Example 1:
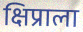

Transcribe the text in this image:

क्षिप्राला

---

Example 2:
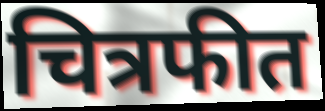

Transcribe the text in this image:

चित्रफीत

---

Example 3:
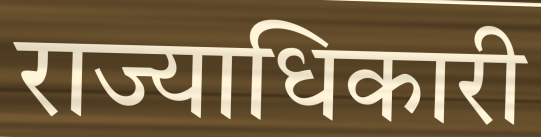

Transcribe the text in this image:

राज्याधिकारी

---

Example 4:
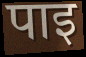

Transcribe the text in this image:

पाइ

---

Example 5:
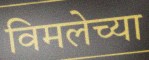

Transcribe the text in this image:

विमलेच्या